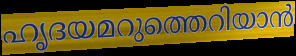
ഹൃദയമറുത്തെറിയാൻ